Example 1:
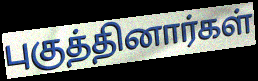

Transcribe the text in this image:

புகுத்தினார்கள்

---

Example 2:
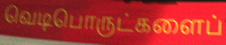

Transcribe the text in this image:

வெடிபொருட்களைப்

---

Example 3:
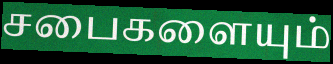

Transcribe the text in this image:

சபைகளையும்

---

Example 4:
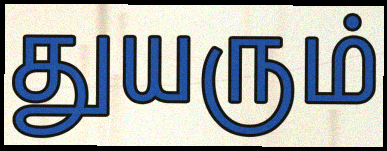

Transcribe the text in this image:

துயரும்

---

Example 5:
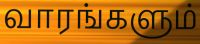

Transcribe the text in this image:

வாரங்களும்